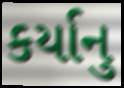
કર્યાનુ